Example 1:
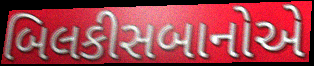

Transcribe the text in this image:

બિલકીસબાનોએ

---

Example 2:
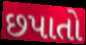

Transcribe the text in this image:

છપાતો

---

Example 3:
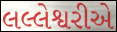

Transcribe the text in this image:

લલ્લેશ્વરીએ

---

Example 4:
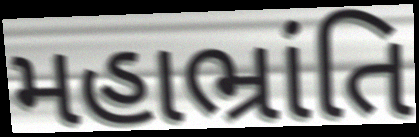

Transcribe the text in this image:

મહાભ્રાંતિ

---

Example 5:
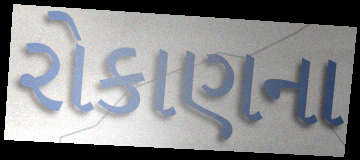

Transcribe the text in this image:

રોકાણના